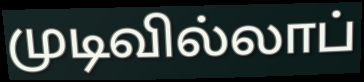
முடிவில்லாப்